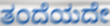
ತಂದೆಯದೇ